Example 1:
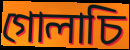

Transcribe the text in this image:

গোলাচি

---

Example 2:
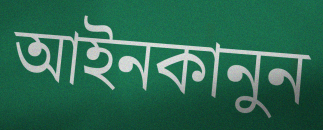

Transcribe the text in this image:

আইনকানুন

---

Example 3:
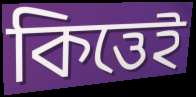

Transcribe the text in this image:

কিত্তেই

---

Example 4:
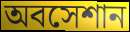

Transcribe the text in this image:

অবসেশান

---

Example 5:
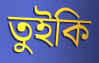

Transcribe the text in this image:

তুইকি